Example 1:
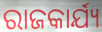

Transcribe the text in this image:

ରାଜକାର୍ଯ୍ୟ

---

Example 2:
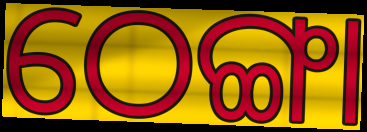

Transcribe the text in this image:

ଠେଙ୍ଗା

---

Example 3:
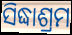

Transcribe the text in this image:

ସିଦ୍ଧାଶ୍ରମ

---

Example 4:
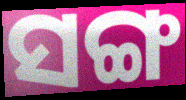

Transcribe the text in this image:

ସଙ୍ଗ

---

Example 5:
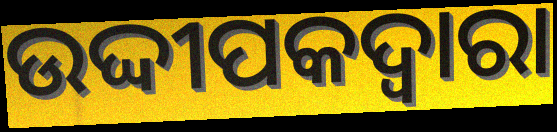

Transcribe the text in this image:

ଉଦ୍ଦୀପକଦ୍ବାରା